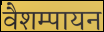
वैशम्पायन